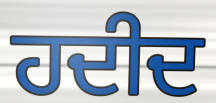
ਹਦੀਦ